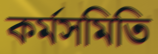
কর্মসমিতি